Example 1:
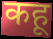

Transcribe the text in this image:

कहू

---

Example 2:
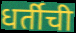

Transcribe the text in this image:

धर्तीची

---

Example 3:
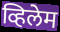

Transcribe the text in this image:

व्हिलेम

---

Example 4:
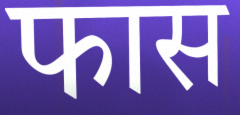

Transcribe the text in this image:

फास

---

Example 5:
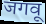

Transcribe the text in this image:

जगवू